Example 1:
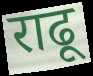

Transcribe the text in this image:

राढू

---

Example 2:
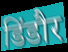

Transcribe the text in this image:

डिंडौर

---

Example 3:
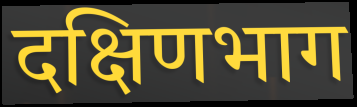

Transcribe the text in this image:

दक्षिणभाग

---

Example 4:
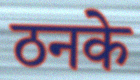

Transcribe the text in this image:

ठनके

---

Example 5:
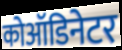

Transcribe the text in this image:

कोऑडिनेटर